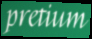
pretium